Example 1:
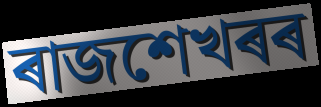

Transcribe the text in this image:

ৰাজশেখৰৰ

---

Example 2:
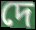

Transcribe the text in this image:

দে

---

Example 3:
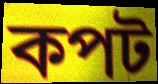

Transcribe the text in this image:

কপট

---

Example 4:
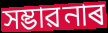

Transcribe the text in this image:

সম্ভাৱনাৰ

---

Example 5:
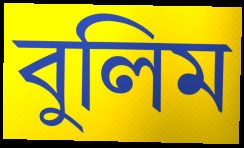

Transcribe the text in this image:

বুলিম